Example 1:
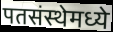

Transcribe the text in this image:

पतसंस्थेमध्ये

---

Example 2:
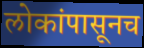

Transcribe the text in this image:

लोकांपासूनच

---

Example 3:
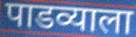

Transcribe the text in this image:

पाडव्याला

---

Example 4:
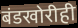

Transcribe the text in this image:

बंडखोरीही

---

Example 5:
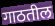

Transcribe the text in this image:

गाठतील